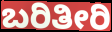
ಬರಿತೀರಿ